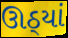
ઊઠ્યાં